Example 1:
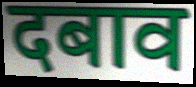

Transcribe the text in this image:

दबाव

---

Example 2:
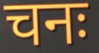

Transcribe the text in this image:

चनः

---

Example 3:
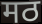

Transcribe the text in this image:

मठ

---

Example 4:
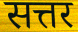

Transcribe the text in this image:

सत्तर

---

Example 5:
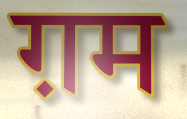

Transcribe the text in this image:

ग़म